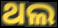
ଥଲ